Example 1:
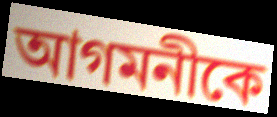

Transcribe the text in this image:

আগমনীকে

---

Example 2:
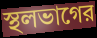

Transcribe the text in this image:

স্থলভাগের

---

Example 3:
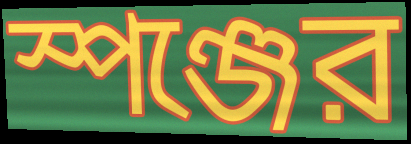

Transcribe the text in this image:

স্পঞ্জের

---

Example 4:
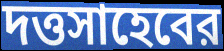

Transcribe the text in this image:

দত্তসাহেবের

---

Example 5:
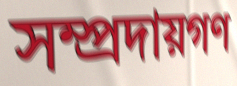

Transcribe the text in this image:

সম্প্রদায়গণ